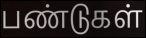
பண்டுகள்